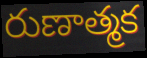
రుణాత్మక